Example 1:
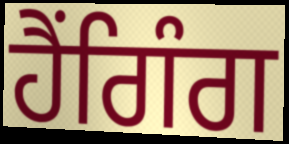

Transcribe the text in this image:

ਹੈਂਗਿੰਗ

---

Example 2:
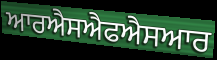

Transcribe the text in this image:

ਆਰਐਸਐਫਐਸਆਰ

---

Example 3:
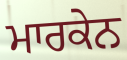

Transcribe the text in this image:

ਮਾਰਕੇਨ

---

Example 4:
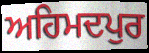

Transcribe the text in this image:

ਅਹਿਮਦਪੁਰ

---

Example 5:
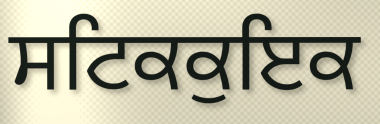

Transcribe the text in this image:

ਸਟਿਕਕੁਇਕ